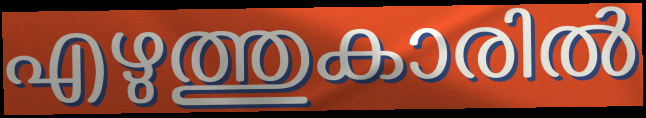
എഴുത്തുകാരിൽ